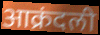
आक्रंदली